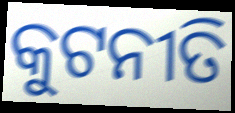
କୁଟନୀତି